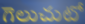
గెలుచుటో